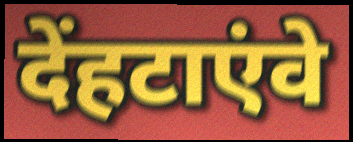
देंहटाएंवे